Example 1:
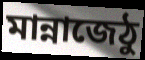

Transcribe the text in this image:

মান্নাজেঠু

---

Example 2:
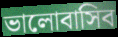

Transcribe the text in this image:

ভালোবাসিব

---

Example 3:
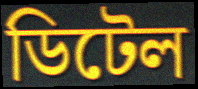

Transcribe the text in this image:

ডিটেল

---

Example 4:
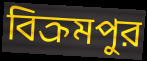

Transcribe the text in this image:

বিক্রমপুর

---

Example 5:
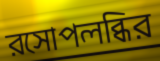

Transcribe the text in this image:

রসোপলব্ধির